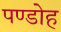
पण्डोह